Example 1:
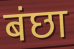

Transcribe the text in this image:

बंछा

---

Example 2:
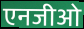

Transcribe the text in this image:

एनजीओ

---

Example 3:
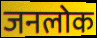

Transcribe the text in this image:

जनलोक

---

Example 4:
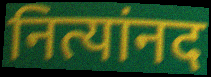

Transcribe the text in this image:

नित्यांनद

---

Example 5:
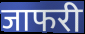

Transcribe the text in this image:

जाफरी